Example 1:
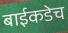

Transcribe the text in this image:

बाईकडेच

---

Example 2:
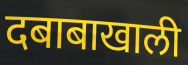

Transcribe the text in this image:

दबाबाखाली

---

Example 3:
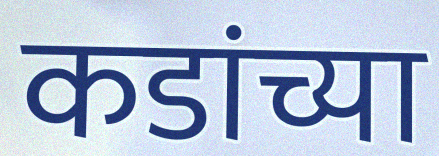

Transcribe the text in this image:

कडांच्या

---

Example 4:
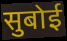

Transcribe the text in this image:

सुबोई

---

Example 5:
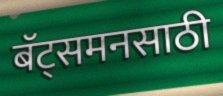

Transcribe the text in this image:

बॅट्समनसाठी